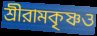
শ্রীরামকৃষ্ণও